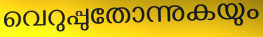
വെറുപ്പുതോന്നുകയും